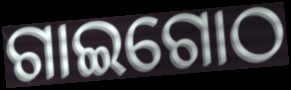
ଗାଇଗୋଠ